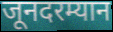
जूनदरम्यान